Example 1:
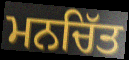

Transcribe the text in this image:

ਮਨਚਿੱਤ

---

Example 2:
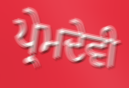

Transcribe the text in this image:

ਪ੍ਰੇਮਦੇਵੀ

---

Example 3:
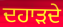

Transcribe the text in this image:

ਦਹਾੜਦੇ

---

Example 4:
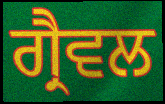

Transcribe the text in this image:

ਗ੍ਰੈਵਲ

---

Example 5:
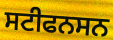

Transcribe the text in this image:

ਸਟੀਫਨਸਨ